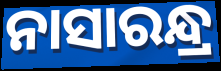
ନାସାରନ୍ଧ୍ର